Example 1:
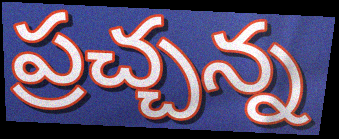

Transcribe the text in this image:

ప్రచ్చన్న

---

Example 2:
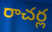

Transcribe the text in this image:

రాచర్ల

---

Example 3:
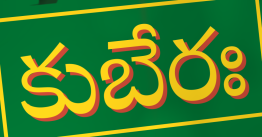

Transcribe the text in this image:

కుబేరః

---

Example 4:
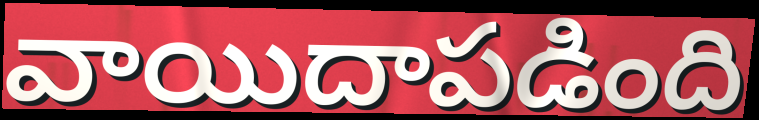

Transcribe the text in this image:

వాయిదాపడింది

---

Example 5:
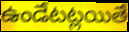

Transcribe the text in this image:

ఉండేటట్లయితే